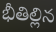
భీతిల్లిన